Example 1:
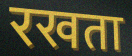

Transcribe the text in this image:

रखता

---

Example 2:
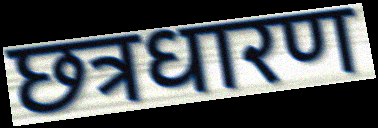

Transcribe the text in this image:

छत्रधारण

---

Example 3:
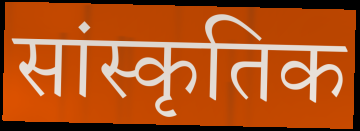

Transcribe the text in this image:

सांस्कृतिक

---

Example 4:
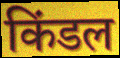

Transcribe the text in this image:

किंडल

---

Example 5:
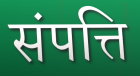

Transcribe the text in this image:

संपत्ति